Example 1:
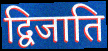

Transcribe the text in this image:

द्विजाति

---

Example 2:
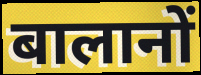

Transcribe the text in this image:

बालानों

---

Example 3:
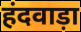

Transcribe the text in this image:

हंदवाड़ा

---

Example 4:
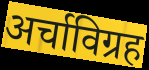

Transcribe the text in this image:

अर्चाविग्रह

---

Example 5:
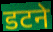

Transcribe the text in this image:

डटने